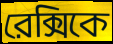
রেক্সিকে